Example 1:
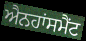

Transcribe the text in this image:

ਐਨਹਾਂਸਮੈਂਟ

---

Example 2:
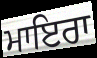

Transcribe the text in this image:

ਮਾਇਰਾ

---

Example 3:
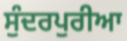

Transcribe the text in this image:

ਸੁੰਦਰਪੁਰੀਆ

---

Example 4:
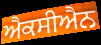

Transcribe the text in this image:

ਐਕਸੀਐਨ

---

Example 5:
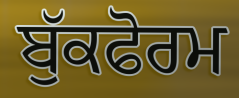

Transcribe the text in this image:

ਬੁੱਕਫੋਰਮ